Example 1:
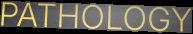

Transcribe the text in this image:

PATHOLOGY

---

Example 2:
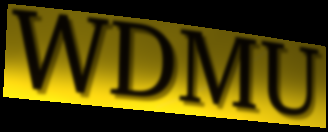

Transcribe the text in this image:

WDMU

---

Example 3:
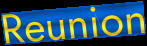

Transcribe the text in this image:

Reunion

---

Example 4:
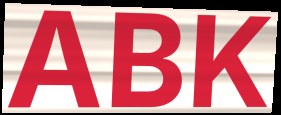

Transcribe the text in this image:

ABK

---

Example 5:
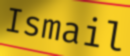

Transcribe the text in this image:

Ismail